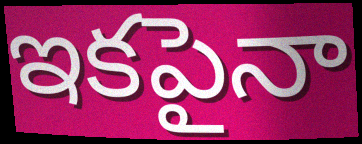
ఇకపైనా